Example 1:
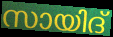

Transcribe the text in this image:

സായിദ്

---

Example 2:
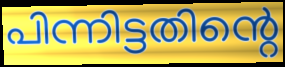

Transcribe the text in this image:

പിന്നിട്ടതിന്റെ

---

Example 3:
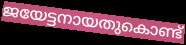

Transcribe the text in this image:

ജയേട്ടനായതുകൊണ്ട്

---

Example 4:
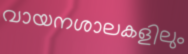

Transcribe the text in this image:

വായനശാലകളിലും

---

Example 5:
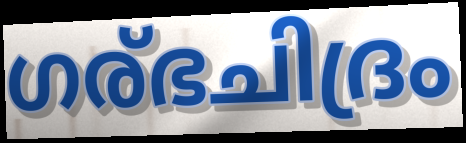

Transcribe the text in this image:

ഗര്ഭചിദ്രം